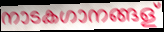
നാടകഗാനങ്ങള്